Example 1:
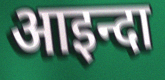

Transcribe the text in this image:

आइन्दा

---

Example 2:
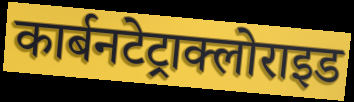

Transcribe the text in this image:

कार्बनटेट्राक्लोराइड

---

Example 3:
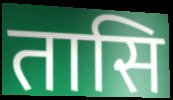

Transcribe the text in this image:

तासि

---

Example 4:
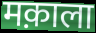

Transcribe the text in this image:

मक़ाला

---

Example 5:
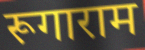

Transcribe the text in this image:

रूगाराम